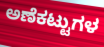
ಅಣೆಕಟ್ಟುಗಳ